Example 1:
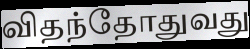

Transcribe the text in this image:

விதந்தோதுவது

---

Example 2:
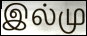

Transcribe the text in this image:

இல்மு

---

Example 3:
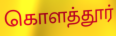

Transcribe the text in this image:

கொளத்தூர்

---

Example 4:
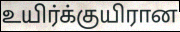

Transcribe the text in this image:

உயிர்க்குயிரான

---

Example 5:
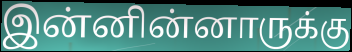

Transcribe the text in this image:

இன்னின்னாருக்கு